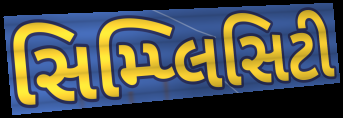
સિમ્પ્લિસિટી